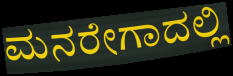
ಮನರೇಗಾದಲ್ಲಿ